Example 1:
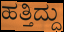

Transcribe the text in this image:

ಹತ್ತಿದ್ದು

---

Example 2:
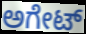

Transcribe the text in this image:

ಅಗೇಟ್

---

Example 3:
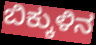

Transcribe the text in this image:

ಬಿಕ್ಕುಳಿನ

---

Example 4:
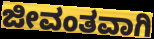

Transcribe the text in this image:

ಜೀವಂತವಾಗಿ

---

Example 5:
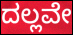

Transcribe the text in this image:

ದಲ್ಲವೇ